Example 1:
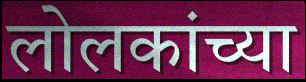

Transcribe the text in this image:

लोलकांच्या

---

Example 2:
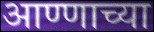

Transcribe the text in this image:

आण्णाच्या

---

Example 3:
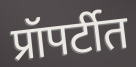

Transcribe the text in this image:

प्रॉपर्टीत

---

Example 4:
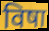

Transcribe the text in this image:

विषा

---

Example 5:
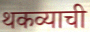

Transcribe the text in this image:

थकव्याची